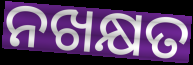
ନଖକ୍ଷତ